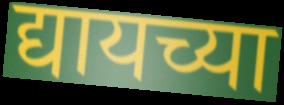
द्यायच्या